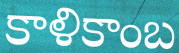
కాళికాంబ